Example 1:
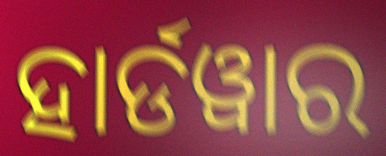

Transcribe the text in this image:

ହାର୍ଡୱାର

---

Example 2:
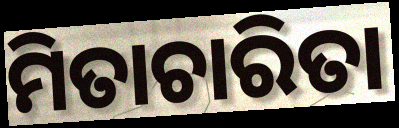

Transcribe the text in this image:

ମିତାଚାରିତା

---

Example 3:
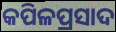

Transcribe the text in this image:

କପିଳପ୍ରସାଦ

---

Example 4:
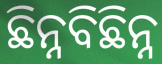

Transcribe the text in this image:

ଛିନ୍ନବିଛିନ୍ନ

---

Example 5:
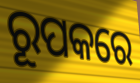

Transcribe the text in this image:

ରୂପକରେ